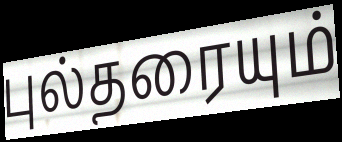
புல்தரையும்